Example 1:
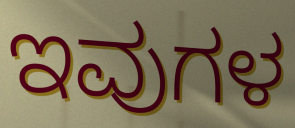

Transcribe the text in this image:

ಇವುಗಳ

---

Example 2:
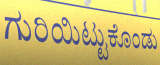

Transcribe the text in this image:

ಗುರಿಯಿಟ್ಟುಕೊಂಡು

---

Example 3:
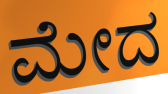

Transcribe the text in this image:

ಮೇದ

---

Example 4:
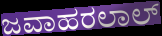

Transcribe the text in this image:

ಜವಾಹರಲಾಲ್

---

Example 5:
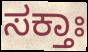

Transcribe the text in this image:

ಸಕ್ತಾಃ